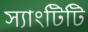
স্যাংটিটি